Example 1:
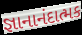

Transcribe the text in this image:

જ્ઞાનાનંદાત્મક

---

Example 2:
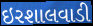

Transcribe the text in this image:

ઇરશાલવાડી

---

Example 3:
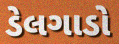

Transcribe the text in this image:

ડેલગાડો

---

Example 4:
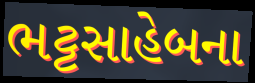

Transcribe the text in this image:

ભટ્ટસાહેબના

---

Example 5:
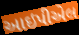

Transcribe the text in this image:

આઇપીએલ